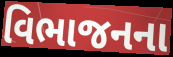
વિભાજનના